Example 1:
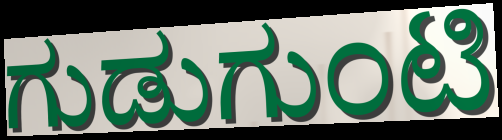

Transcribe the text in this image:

ಗುಡುಗುಂಟಿ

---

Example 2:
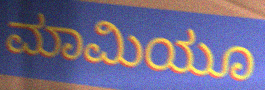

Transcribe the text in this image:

ಮಾಮಿಯೂ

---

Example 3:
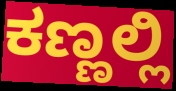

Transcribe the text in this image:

ಕಣ್ಣಲ್ಲಿ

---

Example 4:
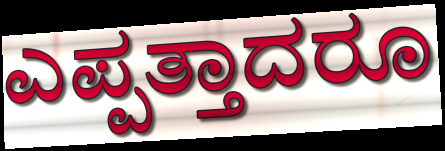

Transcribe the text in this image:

ಎಪ್ಪತ್ತಾದರೂ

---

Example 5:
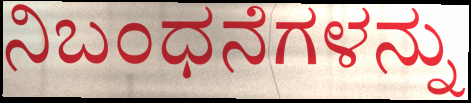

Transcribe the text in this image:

ನಿಬಂಧನೆಗಳನ್ನು